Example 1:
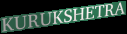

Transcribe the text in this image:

KURUKSHETRA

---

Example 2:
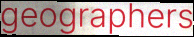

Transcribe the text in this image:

geographers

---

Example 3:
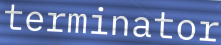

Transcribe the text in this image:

terminator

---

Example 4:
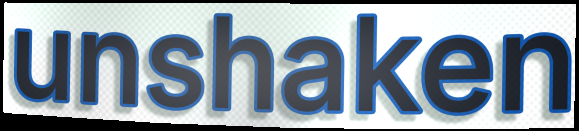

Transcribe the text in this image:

unshaken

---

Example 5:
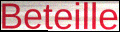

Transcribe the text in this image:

Beteille